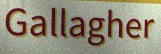
Gallagher